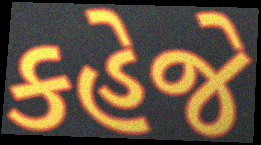
કહેજે